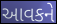
આવકને